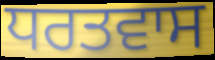
ਧਰਤਵਾਸ